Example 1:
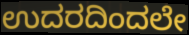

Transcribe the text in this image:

ಉದರದಿಂದಲೇ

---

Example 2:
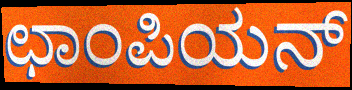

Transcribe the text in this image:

ಛಾಂಪಿಯನ್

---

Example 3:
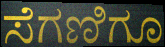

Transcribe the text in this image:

ಸೆಗಣಿಗೂ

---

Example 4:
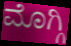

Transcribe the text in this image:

ಮೊಗ್ಗಿ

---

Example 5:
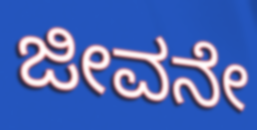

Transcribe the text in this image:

ಜೀವನೇ